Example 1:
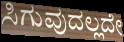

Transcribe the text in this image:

ಸಿಗುವುದಲ್ಲದೇ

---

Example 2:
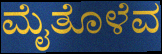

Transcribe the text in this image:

ಮೈತೊಳೆವ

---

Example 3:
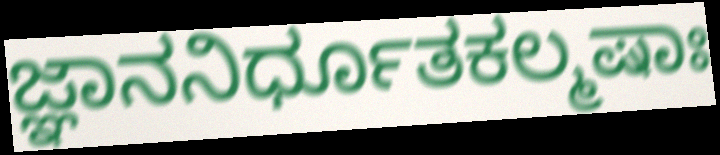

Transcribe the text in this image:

ಜ್ಞಾನನಿರ್ಧೂತಕಲ್ಮಷಾಃ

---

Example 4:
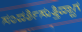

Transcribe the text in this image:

ಸಂದರ್ಶಿಸುತ್ತಿದ್ದಾಗ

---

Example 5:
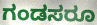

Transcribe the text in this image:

ಗಂಡಸರೂ